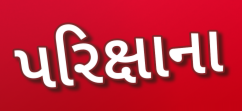
પરિક્ષાના